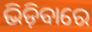
ଭିଡ଼ିବାରେ